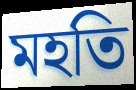
মহতি